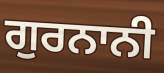
ਗੁਰਨਾਨੀ